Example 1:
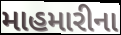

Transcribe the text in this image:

માહમારીના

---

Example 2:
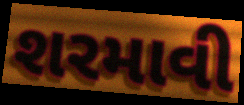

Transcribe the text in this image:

શરમાવી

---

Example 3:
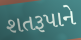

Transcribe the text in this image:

શતરૂપાને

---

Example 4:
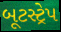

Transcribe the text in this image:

બૂટસ્ટ્રેપ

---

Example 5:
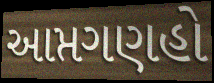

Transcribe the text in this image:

આપ્તગણહો